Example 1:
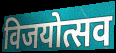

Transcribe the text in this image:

विजयोत्सव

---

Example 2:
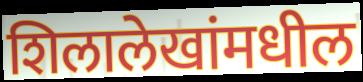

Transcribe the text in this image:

शिलालेखांमधील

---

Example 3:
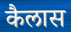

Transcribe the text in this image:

कैलास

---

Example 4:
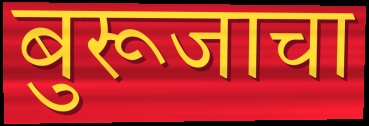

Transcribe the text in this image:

बुरूजाचा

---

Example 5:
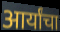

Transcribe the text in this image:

आर्यांचा